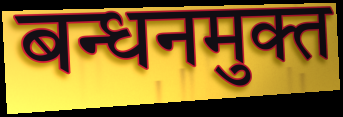
बन्धनमुक्त